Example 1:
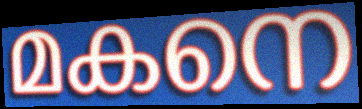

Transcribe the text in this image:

മകനെ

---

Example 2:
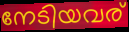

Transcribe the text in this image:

നേടിയവര്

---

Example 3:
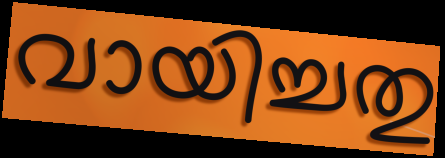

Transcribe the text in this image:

വായിച്ചതു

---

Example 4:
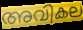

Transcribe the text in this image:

അവികല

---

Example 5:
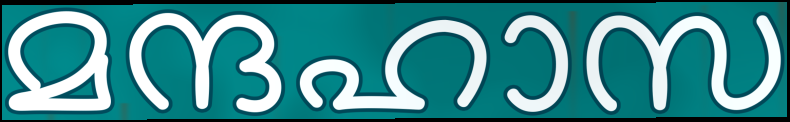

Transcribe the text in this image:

മന്ദഹാസ